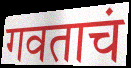
गवताचं